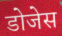
डोजेस